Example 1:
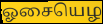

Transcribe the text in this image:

ஓசையெழ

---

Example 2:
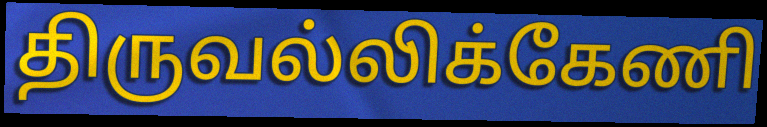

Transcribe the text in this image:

திருவல்லிக்கேணி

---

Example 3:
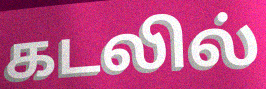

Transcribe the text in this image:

கடலில்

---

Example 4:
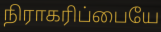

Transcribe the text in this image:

நிராகரிப்பையே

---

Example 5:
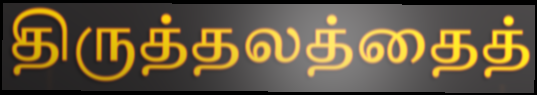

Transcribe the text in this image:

திருத்தலத்தைத்